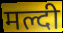
मल्दी